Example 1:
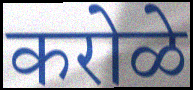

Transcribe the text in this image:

करोळे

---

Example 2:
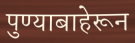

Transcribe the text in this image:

पुण्याबाहेरून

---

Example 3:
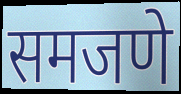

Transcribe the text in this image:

समजणे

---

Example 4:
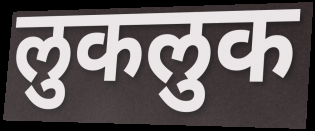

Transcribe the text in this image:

लुकलुक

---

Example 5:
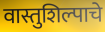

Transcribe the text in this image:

वास्तुशिल्पाचे